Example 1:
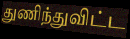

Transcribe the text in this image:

துணிந்துவிட்ட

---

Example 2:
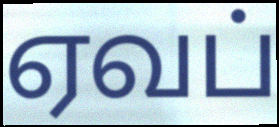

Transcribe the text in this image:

ஏவப்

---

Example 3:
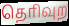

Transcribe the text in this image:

தெரிவுற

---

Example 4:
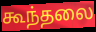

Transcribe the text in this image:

கூந்தலை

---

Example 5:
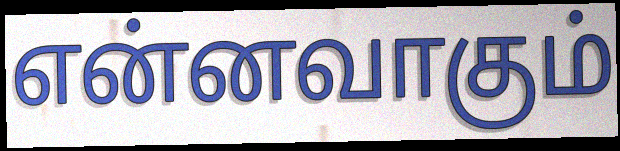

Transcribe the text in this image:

என்னவாகும்